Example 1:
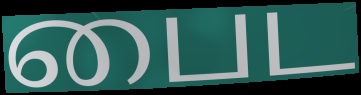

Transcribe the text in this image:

பைட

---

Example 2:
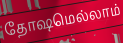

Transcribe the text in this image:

தோஷமெல்லாம்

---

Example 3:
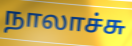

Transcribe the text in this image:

நாலாச்சு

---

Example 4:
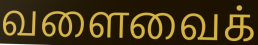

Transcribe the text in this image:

வளைவைக்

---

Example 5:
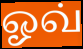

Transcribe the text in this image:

ஓவ்